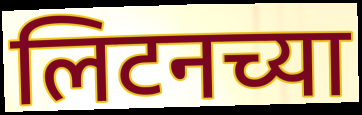
लिटनच्या